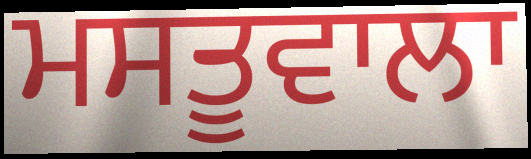
ਮਸਤੂਵਾਲਾ